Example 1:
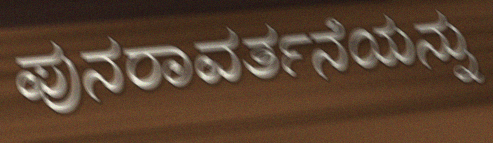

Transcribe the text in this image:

ಪುನರಾವರ್ತನೆಯನ್ನು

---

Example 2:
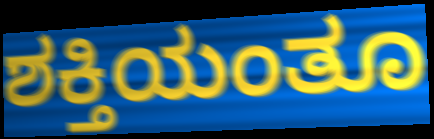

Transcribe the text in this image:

ಶಕ್ತಿಯಂತೂ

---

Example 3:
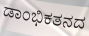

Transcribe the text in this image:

ಡಾಂಭಿಕತನದ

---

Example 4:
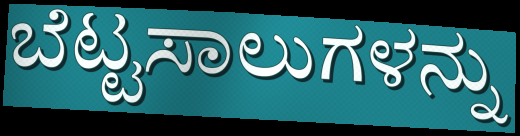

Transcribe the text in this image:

ಬೆಟ್ಟಸಾಲುಗಳನ್ನು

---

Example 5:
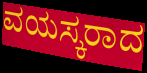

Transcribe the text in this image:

ವಯಸ್ಕರಾದ